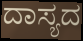
ದಾಸ್ಯದ